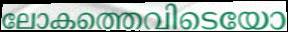
ലോകത്തെവിടെയോ